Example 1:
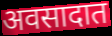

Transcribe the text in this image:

अवसादात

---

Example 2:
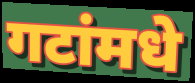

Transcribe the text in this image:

गटांमधे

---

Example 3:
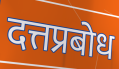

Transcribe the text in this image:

दत्तप्रबोध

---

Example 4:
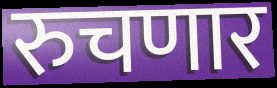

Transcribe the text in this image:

रुचणार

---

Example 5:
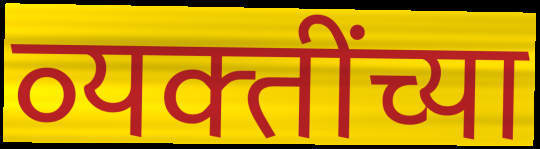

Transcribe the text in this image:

व्‍यक्‍तींच्‍या